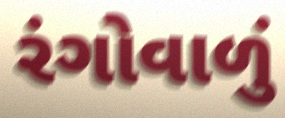
રંગોવાળું